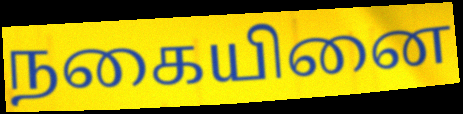
நகையினை